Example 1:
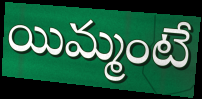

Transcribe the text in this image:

యిమ్మంటే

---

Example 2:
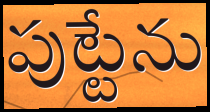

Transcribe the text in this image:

పుట్టేను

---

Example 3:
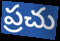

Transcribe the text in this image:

ప్రచు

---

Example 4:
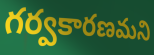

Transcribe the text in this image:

గర్వకారణమని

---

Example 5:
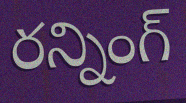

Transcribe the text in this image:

రన్నింగ్